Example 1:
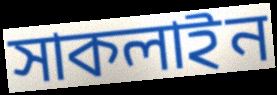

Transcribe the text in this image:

সাকলাইন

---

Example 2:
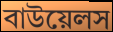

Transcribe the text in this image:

বাউয়েলস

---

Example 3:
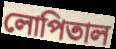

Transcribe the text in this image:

লোপিতাল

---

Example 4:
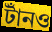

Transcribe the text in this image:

টাঁনও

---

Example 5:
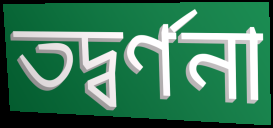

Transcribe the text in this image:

তদ্বর্ণনা